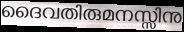
ദൈവതിരുമനസ്സിനു